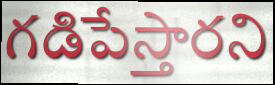
గడిపేస్తారని